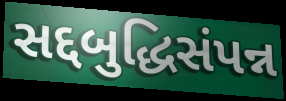
સદ્દબુદ્ધિસંપન્ન